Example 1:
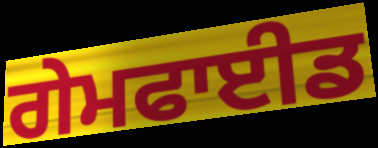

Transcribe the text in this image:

ਗੇਮਫਾਈਡ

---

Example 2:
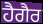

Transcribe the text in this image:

ਹੈਗੈਰ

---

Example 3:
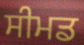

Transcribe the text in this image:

ਸੀਮਡ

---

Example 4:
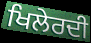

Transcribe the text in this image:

ਖਿਲੇਰਦੀ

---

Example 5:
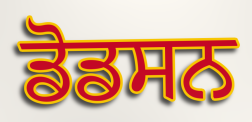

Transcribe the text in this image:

ਡੋਡਸਨ